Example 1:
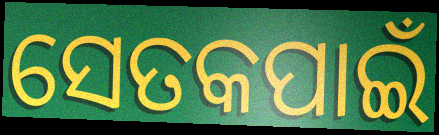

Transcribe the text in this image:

ସେତକପାଇଁ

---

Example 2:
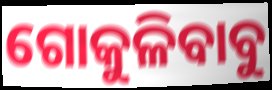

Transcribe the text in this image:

ଗୋକୁଳିବାବୁ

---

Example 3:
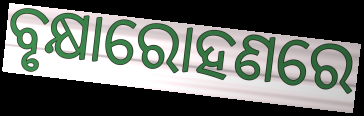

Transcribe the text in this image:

ବୃକ୍ଷାରୋହଣରେ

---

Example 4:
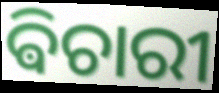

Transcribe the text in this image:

ଵିଚାରୀ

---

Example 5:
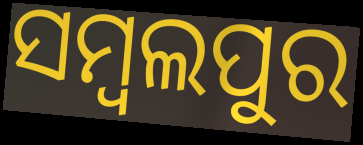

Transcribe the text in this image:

ସମ୍ବଲପୁର